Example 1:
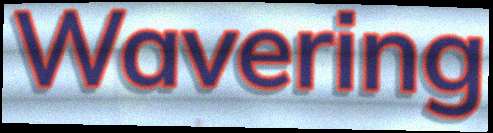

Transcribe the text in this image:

Wavering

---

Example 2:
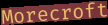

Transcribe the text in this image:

Morecroft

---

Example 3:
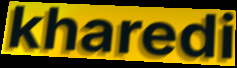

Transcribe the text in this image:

kharedi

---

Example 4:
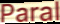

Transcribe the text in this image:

Paral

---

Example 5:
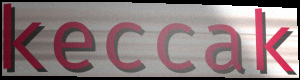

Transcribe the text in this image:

keccak